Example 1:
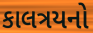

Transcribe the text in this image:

કાલત્રયનો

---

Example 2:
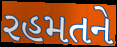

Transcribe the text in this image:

રહમતને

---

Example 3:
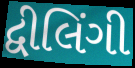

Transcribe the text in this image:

દ્વીલિંગી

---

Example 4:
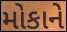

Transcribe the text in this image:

મોકાને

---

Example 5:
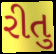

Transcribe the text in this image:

રીતુ